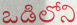
ఒడిలోని